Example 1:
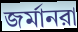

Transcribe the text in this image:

জর্মানরা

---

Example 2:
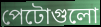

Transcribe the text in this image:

পেটোগুলো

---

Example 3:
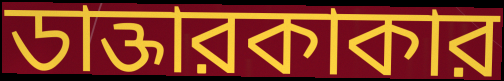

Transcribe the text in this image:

ডাক্তারকাকার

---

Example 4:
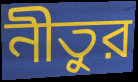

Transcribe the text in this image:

নীতুর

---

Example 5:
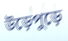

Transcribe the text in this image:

উড়েপুড়ে